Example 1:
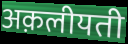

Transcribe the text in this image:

अक़लीयती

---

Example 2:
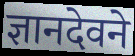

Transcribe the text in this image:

ज्ञानदेवने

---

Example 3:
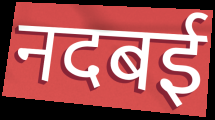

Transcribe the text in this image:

नदबई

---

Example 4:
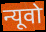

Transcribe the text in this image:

न्यूवो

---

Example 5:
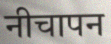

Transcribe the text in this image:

नीचापन